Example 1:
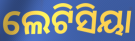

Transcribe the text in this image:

ଲେଟିସିୟା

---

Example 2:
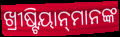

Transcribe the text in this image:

ଖ୍ରୀଷ୍ଟିୟାନ୍‌ମାନଙ୍କ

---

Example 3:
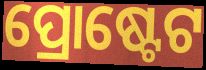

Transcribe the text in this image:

ପ୍ରୋଷ୍ଟେଟ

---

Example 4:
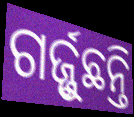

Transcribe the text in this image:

ଗର୍ଜ୍ଜୁଛନ୍ତି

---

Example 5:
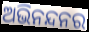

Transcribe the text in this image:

ଅଭିନନ୍ଦନର